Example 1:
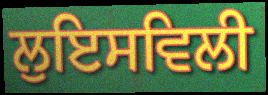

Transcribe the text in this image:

ਲੁਇਸਵਿਲੀ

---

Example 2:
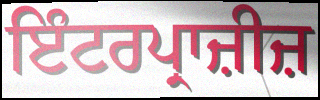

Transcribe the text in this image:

ਇੰਟਰਪ੍ਰਾਜ਼ੀਜ਼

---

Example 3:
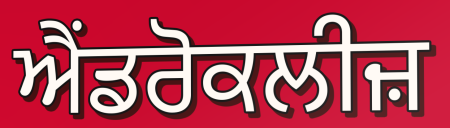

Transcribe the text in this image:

ਐਂਡਰੋਕਲੀਜ਼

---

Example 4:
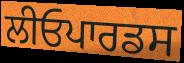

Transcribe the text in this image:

ਲੀਓਪਾਰਡਸ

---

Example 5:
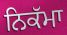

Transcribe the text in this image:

ਨਿਕੱਮਾ